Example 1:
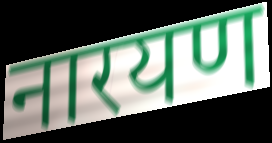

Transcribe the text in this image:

नारयण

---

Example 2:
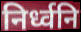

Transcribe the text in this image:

निर्ध्वनि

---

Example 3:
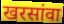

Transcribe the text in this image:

खरसांवा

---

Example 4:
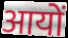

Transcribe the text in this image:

आयों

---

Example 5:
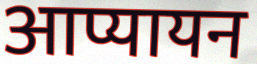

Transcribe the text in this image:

आप्यायन